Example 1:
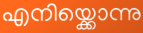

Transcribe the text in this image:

എനിയ്ക്കൊന്നു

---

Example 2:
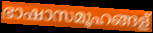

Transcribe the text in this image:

ഭാഷാസമൂഹങ്ങള്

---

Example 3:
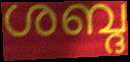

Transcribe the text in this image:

ശബ്ദ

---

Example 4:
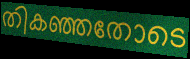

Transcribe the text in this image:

തികഞ്ഞതോടെ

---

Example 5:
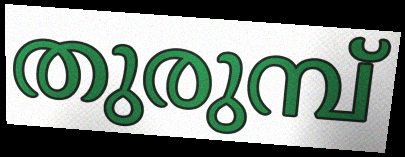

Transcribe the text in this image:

തുരുമ്പ്